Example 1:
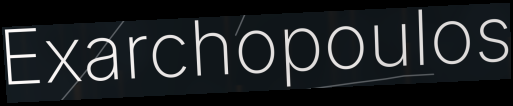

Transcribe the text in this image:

Exarchopoulos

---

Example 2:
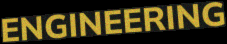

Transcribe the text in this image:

ENGINEERING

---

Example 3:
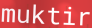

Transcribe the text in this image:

muktir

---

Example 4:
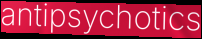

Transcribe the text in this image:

antipsychotics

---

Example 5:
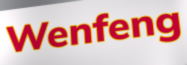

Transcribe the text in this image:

Wenfeng